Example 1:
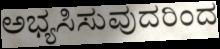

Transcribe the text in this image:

ಅಭ್ಯಸಿಸುವುದರಿಂದ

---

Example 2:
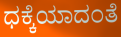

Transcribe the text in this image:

ಧಕ್ಕೆಯಾದಂತೆ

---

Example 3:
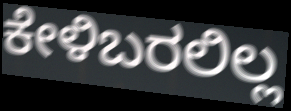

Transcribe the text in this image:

ಕೇಳಿಬರಲಿಲ್ಲ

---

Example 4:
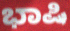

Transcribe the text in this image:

ಭಾಷಿ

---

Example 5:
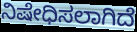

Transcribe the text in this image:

ನಿಷೇಧಿಸಲಾಗಿದೆ